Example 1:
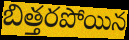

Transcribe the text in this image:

బిత్తరపోయిన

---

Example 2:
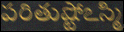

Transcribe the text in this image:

పరితుష్టోఽస్మి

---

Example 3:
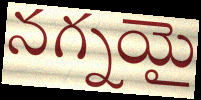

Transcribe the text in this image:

నగ్నయై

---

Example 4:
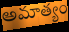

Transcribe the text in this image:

అమాత్యం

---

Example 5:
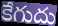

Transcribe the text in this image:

కేగుదు